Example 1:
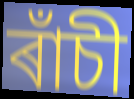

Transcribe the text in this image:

ৰাঁচী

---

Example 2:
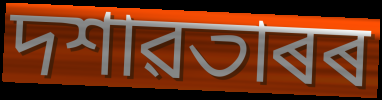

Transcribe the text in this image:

দশাৱতাৰৰ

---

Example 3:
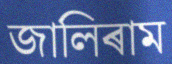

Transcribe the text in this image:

জালিৰাম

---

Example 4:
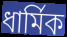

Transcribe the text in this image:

ধাৰ্মিক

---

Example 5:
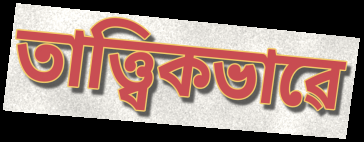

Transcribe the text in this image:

তাত্ত্বিকভাৱে